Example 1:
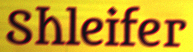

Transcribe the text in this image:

Shleifer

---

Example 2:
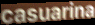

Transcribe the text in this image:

casuarina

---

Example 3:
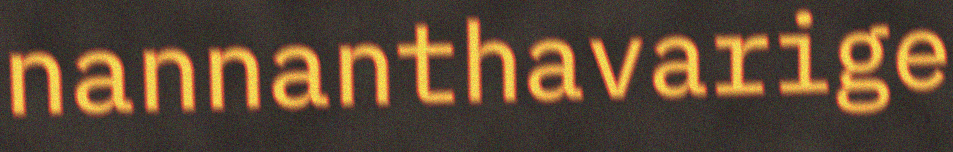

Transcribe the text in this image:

nannanthavarige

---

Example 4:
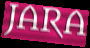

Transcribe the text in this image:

JARA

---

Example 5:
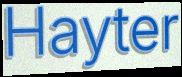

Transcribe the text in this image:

Hayter